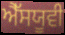
ਐੱਸਯੂਵੀ